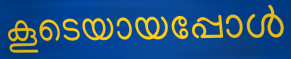
കൂടെയായപ്പോൾ